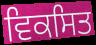
ਵਿਕਸਿਤ